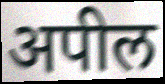
अपील